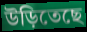
উড়িতেছে